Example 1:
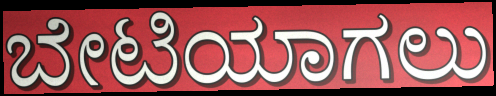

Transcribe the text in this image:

ಬೇಟಿಯಾಗಲು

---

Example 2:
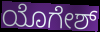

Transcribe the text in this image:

ಯೊಗೇಶ್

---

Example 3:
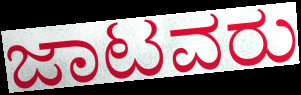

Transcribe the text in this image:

ಜಾಟವರು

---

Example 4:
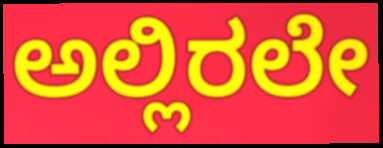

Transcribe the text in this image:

ಅಲ್ಲಿರಲೇ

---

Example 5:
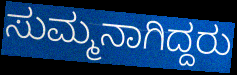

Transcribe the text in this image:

ಸುಮ್ಮನಾಗಿದ್ದರು